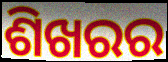
ଶିଖରର